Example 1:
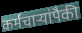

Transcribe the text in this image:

कर्मचाऱ्यांपैकी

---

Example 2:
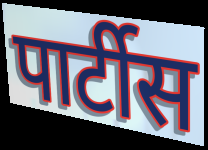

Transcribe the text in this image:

पार्टीस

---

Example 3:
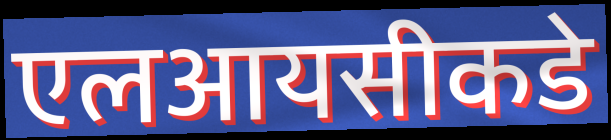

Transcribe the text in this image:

एलआयसीकडे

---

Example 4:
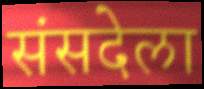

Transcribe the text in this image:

संसदेला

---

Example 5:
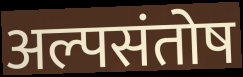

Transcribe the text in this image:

अल्पसंतोष